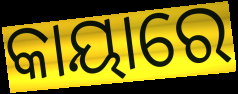
କାୟାରେ